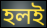
হলই